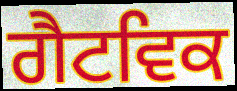
ਗੈਟਵਿਕ